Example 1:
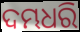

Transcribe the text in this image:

ଦମ୍ଭଧରି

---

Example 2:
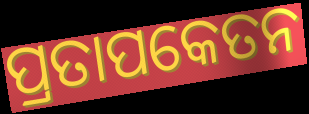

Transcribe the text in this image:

ପ୍ରତାପକେତନ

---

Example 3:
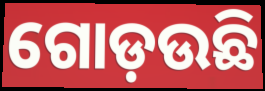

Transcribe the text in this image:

ଗୋଡ଼ଉଛି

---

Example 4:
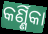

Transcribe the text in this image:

କର୍ଣ୍ଣିକା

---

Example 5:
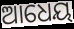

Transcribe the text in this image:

ଆଧେୟ